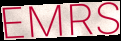
EMRS